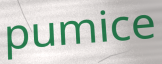
pumice